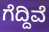
ಗೆದ್ದಿವೆ